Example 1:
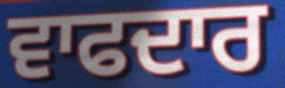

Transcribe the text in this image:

ਵਾਫਦਾਰ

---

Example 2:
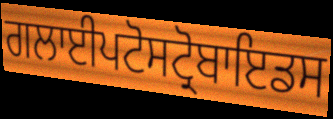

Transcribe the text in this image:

ਗਲਾਈਪਟੋਸਟ੍ਰੋਬਾਇਡਸ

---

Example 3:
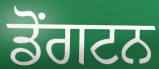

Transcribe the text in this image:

ਡੋਂਗਟਨ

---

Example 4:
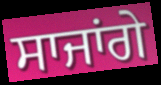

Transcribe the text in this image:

ਸਾਜਾਂਗੇ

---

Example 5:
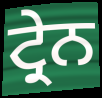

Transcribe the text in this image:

ਟ੍ਰੇਨ